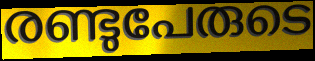
രണ്ടുപേരുടെ